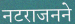
नटराजनने